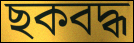
ছকবদ্ধ